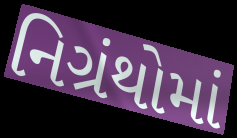
નિગ્રંથોમાં